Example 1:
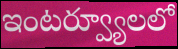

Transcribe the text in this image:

ఇంటర్వ్యూలలో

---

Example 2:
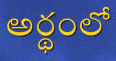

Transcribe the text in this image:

అర్థంలో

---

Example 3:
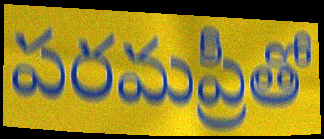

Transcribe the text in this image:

పరమప్రీతో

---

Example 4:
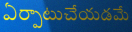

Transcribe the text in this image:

ఏర్పాటుచేయడమే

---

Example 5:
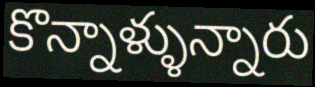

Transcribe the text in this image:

కొన్నాళ్ళున్నారు